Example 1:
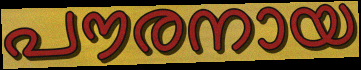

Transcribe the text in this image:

പൗരനായ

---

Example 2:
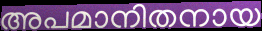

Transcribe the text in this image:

അപമാനിതനായ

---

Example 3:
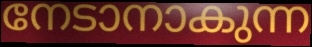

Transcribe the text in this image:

നേടാനാകുന്ന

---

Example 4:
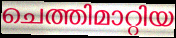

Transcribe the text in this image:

ചെത്തിമാറ്റിയ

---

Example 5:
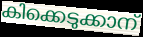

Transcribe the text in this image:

കിക്കെടുക്കാന്